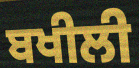
ਬਖੀਲੀ